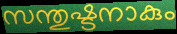
സന്തുഷ്ടനാകും